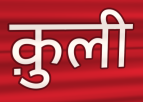
क़ुली